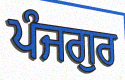
ਪੰਜਗੁਰ